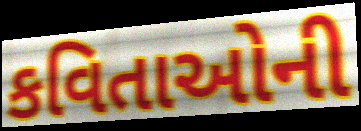
કવિતાઓની